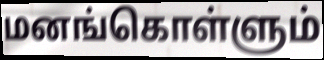
மனங்கொள்ளும்